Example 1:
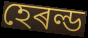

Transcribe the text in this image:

হেৰল্ড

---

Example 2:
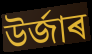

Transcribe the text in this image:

উৰ্জাৰ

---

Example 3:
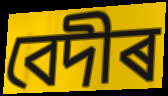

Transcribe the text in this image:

বেদীৰ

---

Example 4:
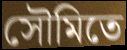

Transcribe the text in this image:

সৌমিতে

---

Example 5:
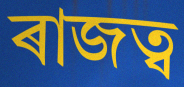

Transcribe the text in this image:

ৰাজত্ব